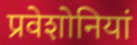
प्रवेशोनियां